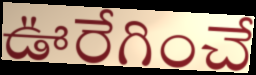
ఊరేగించే